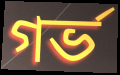
গর্ভ